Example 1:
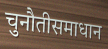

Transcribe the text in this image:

चुनौतीसमाधान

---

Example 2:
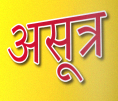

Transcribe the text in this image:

असूत्र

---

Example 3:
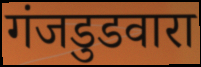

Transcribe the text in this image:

गंजडुडवारा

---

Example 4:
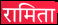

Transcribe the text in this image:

रामिता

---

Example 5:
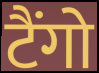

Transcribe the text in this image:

टैंगो